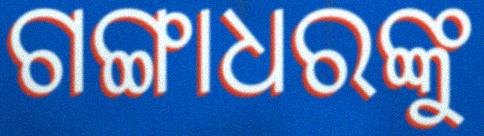
ଗଙ୍ଗାଧରଙ୍କୁ